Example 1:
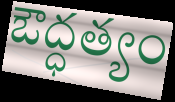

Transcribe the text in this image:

ఔద్ధత్యం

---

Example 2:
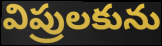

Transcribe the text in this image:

విప్రులకును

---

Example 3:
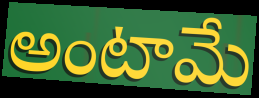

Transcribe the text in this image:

అంటామే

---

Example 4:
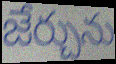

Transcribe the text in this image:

జేర్చును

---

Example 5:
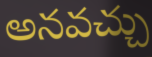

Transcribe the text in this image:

అనవచ్చు